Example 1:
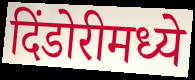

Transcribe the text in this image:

दिंडोरीमध्ये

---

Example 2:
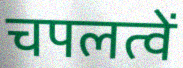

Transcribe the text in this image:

चपलत्वें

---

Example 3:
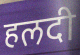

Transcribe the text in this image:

हलदी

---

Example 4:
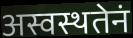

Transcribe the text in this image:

अस्वस्थतेनं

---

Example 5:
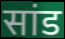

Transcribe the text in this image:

सांड